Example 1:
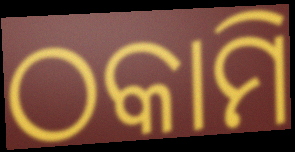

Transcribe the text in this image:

ଠକାମି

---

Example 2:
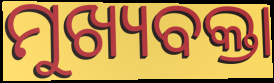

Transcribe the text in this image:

ମୁଖ୍ୟବକ୍ତା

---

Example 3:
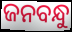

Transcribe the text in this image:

ଜନବନ୍ଧୁ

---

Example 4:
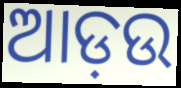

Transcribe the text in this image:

ଆଡ଼ଉ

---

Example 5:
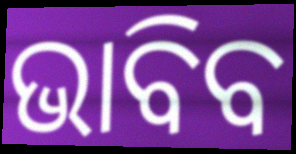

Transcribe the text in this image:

ଭାବିବ